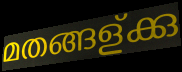
മതങ്ങള്ക്കു